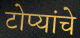
टोप्यांचे